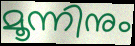
മൂന്നിനും